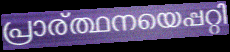
പ്രാര്ത്ഥനയെപ്പറ്റി